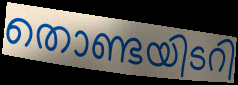
തൊണ്ടയിടറി